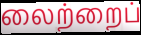
லைற்றைப்